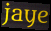
jaye